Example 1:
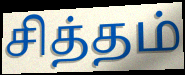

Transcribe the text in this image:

சித்தம்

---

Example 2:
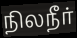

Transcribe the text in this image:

நிலநீர்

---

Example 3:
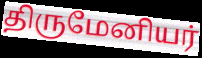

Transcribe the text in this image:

திருமேனியர்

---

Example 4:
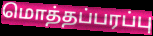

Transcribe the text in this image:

மொத்தப்பரப்பு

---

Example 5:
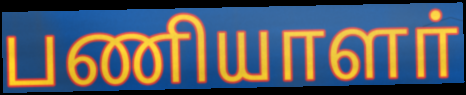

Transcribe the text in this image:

பணியாளர்